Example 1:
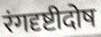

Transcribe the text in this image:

रंगदृष्टीदोष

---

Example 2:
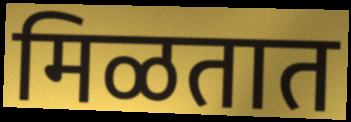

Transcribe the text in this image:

मिळतात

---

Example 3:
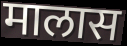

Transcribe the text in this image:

मालास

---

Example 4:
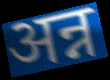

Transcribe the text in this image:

अन्न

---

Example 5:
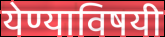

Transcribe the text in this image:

येण्याविषयी